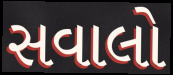
સવાલો